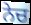
ਨੇਚ